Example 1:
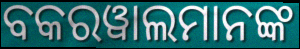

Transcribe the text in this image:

ବକରୱାଲମାନଙ୍କ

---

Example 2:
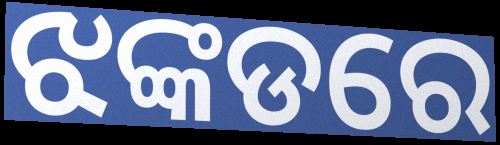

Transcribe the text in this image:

ଝଙ୍କଡରେ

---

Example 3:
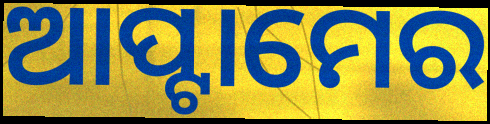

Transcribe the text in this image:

ଆପ୍ଟାମେର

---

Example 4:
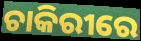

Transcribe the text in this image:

ଚାକିରୀରେ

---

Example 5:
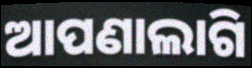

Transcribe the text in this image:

ଆପଣାଲାଗି